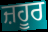
ਜ਼ਹੂਰ